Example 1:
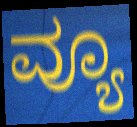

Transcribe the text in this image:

ವ್ಯೂ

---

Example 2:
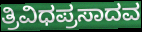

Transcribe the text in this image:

ತ್ರಿವಿಧಪ್ರಸಾದವ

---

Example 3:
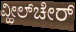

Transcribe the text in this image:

ವ್ಹೀಲ್‌ಚೇರ್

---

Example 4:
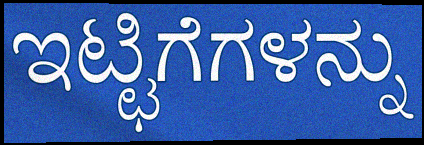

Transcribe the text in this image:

ಇಟ್ಟಿಗೆಗಳನ್ನು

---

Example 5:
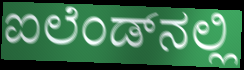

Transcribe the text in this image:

ಐಲೆಂಡ್‌ನಲ್ಲಿ